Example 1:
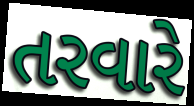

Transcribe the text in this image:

તરવારે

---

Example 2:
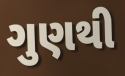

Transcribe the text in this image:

ગુણથી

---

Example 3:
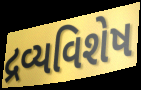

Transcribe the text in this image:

દ્રવ્યવિશેષ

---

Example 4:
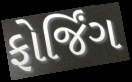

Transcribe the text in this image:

ફોર્જિંગ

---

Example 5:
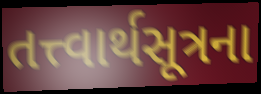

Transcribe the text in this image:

તત્ત્વાર્થસૂત્રના